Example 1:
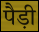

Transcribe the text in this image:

पैड़ी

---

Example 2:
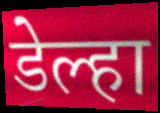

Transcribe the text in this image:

डेल्हा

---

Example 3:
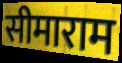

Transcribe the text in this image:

सीमाराम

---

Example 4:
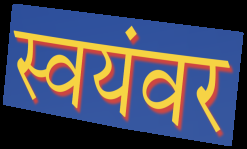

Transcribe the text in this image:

स्वयंवर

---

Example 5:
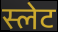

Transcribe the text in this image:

स्लेट